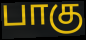
பாகு